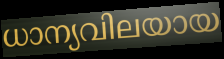
ധാന്യവിലയായ